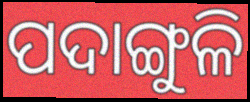
ପଦାଙ୍ଗୁଳି